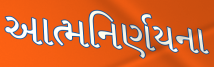
આત્મનિર્ણયના